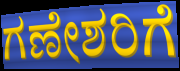
ಗಣೇಶರಿಗೆ